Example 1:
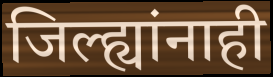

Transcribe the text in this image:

जिल्ह्यांनाही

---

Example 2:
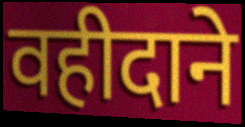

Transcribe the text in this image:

वहीदाने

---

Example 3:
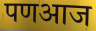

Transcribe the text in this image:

पणआज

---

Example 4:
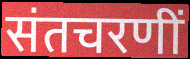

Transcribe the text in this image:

संतचरणीं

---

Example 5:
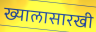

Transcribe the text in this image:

ख्यालासारखी